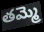
తమ్మె